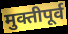
मुक्तीपूर्व